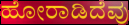
ಹೋರಾಡಿದೆವು